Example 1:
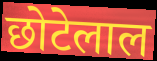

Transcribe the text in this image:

छोटेलाल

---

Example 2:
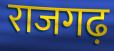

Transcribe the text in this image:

राजगढ़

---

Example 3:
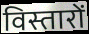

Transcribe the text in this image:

विस्तारों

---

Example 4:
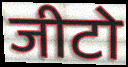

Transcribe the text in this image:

जीटो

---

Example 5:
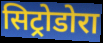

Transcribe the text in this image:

सिट्रोडोरा